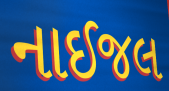
નાઈજલ